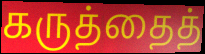
கருத்தைத்